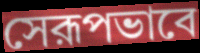
সেরূপভাবে